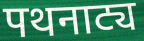
पथनाट्य